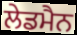
ਲੇਡਮੈਨ